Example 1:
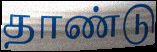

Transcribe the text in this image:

தாண்டு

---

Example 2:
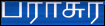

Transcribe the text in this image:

பராசுர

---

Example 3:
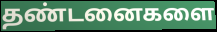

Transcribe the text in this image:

தண்டனைகளை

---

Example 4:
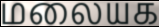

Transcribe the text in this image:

மலையக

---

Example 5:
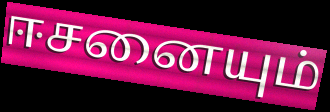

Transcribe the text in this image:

ஈசனையும்